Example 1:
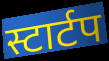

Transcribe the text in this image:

स्टार्टप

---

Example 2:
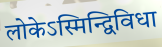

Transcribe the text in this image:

लोकेऽस्मिन्द्विविधा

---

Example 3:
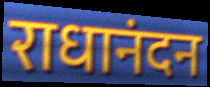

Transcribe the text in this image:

राधानंदन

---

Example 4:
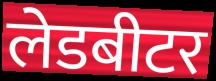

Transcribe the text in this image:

लेडबीटर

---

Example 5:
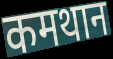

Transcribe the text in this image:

कमथान